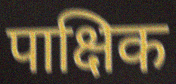
पाक्षिक